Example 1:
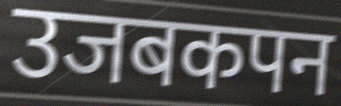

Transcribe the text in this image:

उजबकपन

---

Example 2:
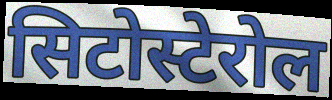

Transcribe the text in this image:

सिटोस्टेरोल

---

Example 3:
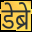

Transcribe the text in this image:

डेब्रे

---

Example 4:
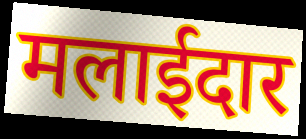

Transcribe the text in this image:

मलाईदार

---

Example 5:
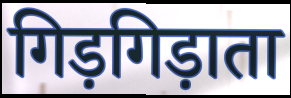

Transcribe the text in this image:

गिड़गिड़ाता